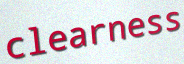
clearness